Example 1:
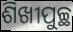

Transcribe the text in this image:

ଶିଖୀପୁଚ୍ଛ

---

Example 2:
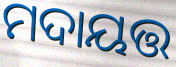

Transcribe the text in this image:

ମଦାୟତ୍ତ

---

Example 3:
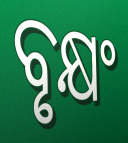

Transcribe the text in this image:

ବୃକ୍ଷଂ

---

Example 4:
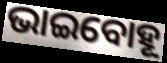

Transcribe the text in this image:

ଭାଇବୋହୂ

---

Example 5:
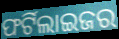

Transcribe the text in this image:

ଫର୍ଟିଲାଇଜର